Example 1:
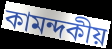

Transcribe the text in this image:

কামন্দকীয়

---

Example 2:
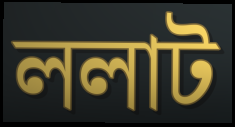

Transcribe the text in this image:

ললাট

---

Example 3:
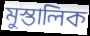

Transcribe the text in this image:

মুস্তালিক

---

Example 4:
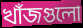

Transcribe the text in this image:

খাঁজগুলো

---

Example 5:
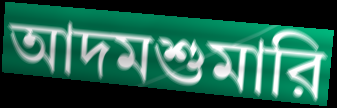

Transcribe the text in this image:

আদমশুমারি